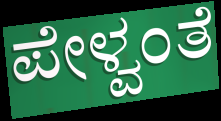
ಪೇಳ್ವಂತೆ